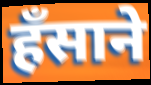
हँसाने